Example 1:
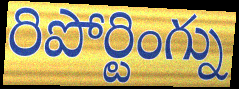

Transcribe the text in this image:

రిపోర్టింగ్ను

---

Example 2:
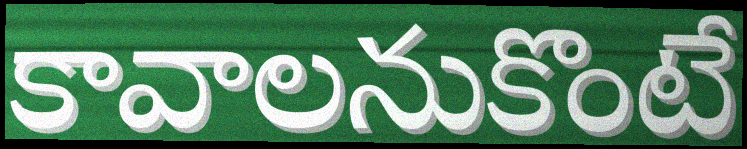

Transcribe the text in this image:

కావాలనుకొంటే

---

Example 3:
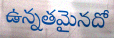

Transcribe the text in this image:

ఉన్నతమైనదో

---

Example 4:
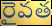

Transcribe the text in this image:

రైవత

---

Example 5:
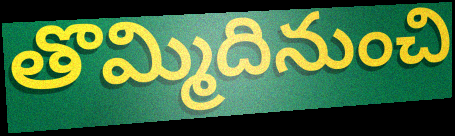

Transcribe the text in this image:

తొమ్మిదినుంచి